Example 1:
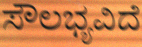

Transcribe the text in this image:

ಸೌಲಭ್ಯವಿದೆ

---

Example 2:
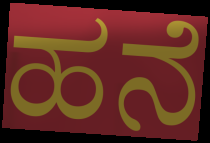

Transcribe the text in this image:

ಹನೆ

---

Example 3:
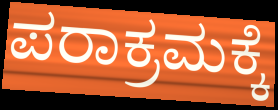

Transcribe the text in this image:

ಪರಾಕ್ರಮಕ್ಕೆ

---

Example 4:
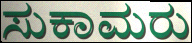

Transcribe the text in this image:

ಸುಕಾಮರು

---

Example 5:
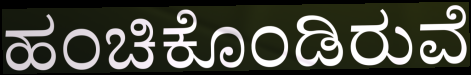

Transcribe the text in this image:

ಹಂಚಿಕೊಂಡಿರುವೆ